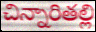
చిన్నారితల్లి